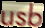
usb